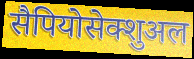
सैपियोसेक्शुअल